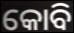
କୋବି